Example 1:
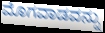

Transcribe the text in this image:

ಮೊಗವಾಡವನ್ನು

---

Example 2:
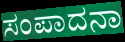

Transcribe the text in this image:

ಸಂಪಾದನಾ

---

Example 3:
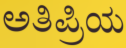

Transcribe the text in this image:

ಅತಿಪ್ರಿಯ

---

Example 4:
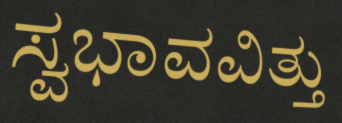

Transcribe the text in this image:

ಸ್ವಭಾವವಿತ್ತು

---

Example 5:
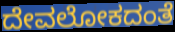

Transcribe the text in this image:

ದೇವಲೋಕದಂತೆ